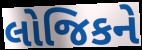
લોજિકને